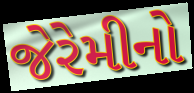
જેરેમીનો